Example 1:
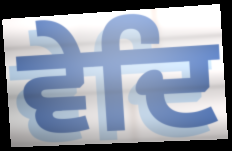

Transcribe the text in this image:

ਵੇਦਿ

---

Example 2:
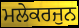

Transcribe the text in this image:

ਮਲੇਕਰਜੁਨ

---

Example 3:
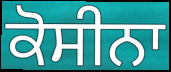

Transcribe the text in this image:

ਕੋਸੀਨਾ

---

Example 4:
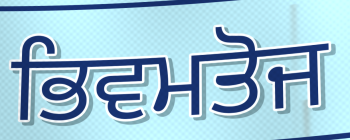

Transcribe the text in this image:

ਭਿਵਮਤੋਜ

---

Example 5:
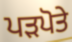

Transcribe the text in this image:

ਪੜਪੋਤੇ